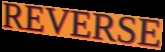
REVERSE